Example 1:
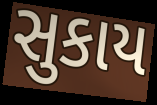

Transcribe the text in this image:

સુકાય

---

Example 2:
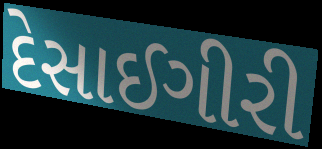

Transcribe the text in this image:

દેસાઈગીરી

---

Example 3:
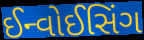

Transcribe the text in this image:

ઈન્વોઈસિંગ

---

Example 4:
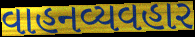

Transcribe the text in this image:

વાહનવ્યવહાર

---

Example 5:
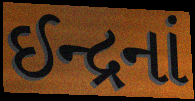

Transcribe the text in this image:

ઈન્દ્રનાં